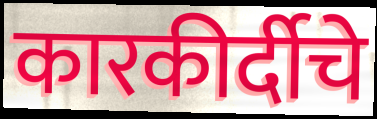
कारकीर्दीचे